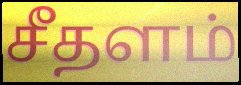
சீதளம்